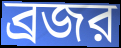
ব্রজর